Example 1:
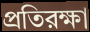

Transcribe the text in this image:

প্রতিরক্ষা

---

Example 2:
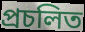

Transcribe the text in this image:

প্রচলিত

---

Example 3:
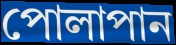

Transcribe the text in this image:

পোলাপান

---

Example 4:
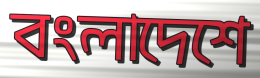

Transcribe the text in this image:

বংলাদেশে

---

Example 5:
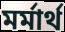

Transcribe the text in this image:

মর্মার্থ